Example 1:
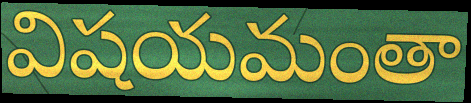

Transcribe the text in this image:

విషయమంతా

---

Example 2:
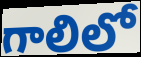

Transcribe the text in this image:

గాలిలో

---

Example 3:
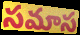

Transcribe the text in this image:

సమాస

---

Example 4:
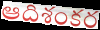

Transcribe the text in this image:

ఆదిశంకర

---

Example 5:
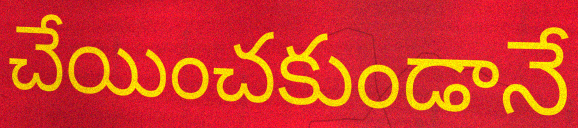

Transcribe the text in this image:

చేయించకుండానే